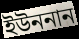
ইউননান